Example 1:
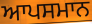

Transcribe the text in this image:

ਆਪਸਮਾਨ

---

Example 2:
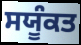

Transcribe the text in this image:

ਸਯੂੰਕਤ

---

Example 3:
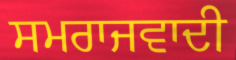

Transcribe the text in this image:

ਸਮਰਾਜਵਾਦੀ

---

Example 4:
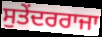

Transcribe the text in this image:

ਸੁਤੇਂਦਰਰਾਜਾ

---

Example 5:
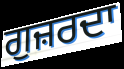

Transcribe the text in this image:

ਗੁਜ਼ਰਦਾ